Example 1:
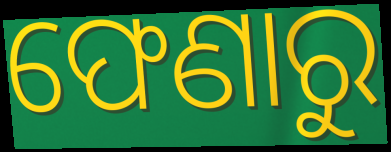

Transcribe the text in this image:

ଫେଣାରୁ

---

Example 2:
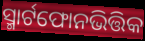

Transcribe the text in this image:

ସ୍ମାର୍ଟଫୋନଭିତ୍ତିକ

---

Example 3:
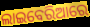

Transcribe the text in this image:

ଲାଇବେରିଆରେ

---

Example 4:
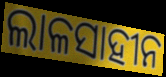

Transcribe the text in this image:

ଲାଳସାହୀନ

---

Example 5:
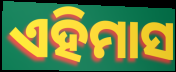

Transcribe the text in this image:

ଏହିମାସ